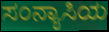
ಸಂನ್ಯಾಸಿಯ